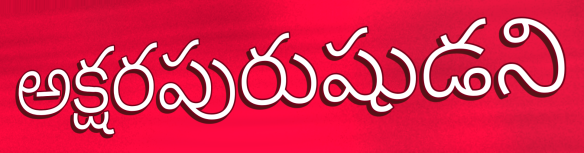
అక్షరపురుషుడని